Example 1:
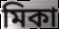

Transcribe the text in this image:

মিকা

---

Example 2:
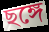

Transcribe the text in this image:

ছঙ্গে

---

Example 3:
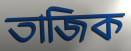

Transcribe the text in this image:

তাজিক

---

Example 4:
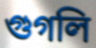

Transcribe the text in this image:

গুগলি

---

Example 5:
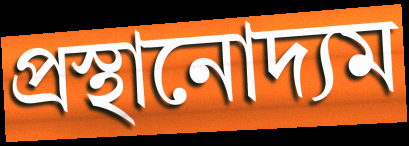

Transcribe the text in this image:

প্রস্থানোদ্যম